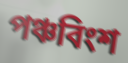
পঞ্চবিংশ